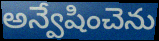
అన్వేషించెను